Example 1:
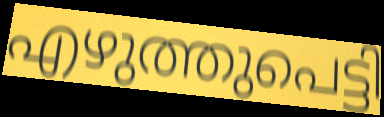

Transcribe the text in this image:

എഴുത്തുപെട്ടി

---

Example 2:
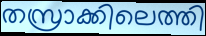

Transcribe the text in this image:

തസ്രാക്കിലെത്തി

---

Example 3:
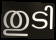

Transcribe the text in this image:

തുടി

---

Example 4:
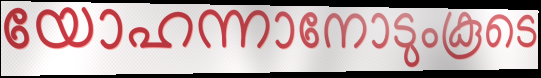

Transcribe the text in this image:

യോഹന്നാനോടുംകൂടെ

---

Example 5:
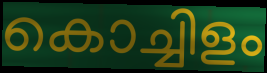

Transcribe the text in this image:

കൊച്ചിളം